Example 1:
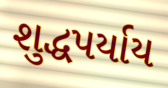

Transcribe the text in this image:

શુદ્ધપર્યાય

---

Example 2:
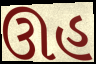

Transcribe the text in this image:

ઊહ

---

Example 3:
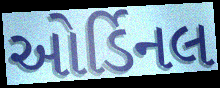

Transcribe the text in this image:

ઓર્ડિનલ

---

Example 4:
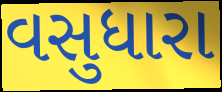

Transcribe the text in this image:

વસુધારા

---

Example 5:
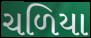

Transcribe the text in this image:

ચળિયા